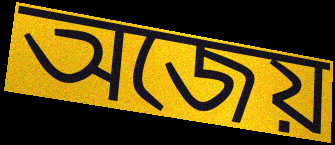
অজেয়